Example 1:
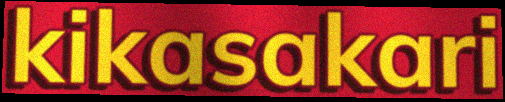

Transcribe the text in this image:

kikasakari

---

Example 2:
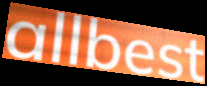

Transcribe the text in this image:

allbest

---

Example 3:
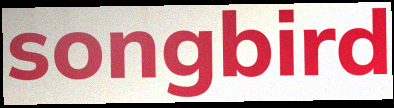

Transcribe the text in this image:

songbird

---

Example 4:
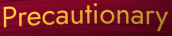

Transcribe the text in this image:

Precautionary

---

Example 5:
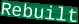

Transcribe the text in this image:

Rebuilt